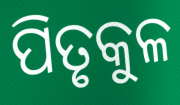
ପିତୃକୁଳ